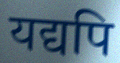
यद्यपि